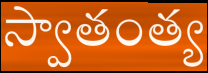
స్వాతంత్య